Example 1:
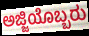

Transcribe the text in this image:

ಅಜ್ಜಿಯೊಬ್ಬರು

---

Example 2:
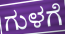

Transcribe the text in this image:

ಗುಳಗೆ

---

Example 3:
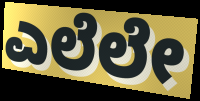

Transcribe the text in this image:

ಎಲೆಲೇ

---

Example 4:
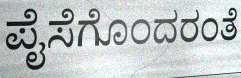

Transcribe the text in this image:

ಪೈಸೆಗೊಂದರಂತೆ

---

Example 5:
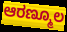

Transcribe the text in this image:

ಆರಣ್ಮೂಲ